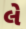
લે